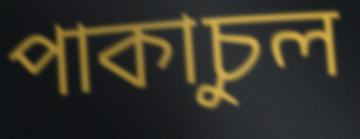
পাকাচুল